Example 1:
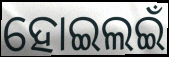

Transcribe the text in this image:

ହୋଇଲଇଁ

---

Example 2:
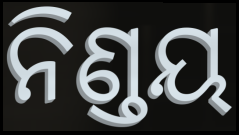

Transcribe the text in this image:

ନିଣ୍ଡୟ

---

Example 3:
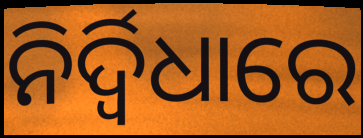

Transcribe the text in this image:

ନିର୍ଦ୍ୱିଧାରେ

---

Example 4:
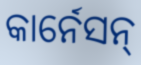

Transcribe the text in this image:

କାର୍ନେସନ୍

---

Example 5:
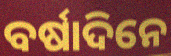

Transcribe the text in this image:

ବର୍ଷାଦିନେ